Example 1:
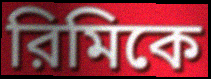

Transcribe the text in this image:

রিমিকে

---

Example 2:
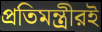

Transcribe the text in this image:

প্রতিমন্ত্রীরই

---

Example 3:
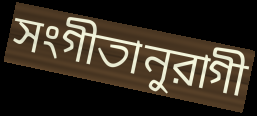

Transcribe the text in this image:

সংগীতানুরাগী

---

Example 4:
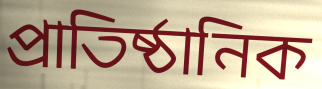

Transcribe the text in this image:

প্রাতিষ্ঠানিক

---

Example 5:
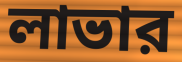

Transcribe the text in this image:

লাভার